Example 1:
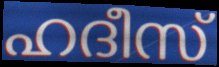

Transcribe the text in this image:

ഹദീസ്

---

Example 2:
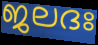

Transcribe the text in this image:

ജലദഃ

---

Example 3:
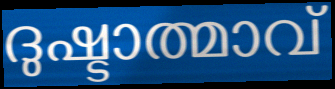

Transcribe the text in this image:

ദുഷ്ടാത്മാവ്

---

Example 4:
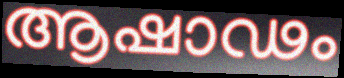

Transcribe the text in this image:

ആഷാഢം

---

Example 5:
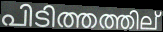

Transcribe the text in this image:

പിടിത്തത്തില്